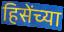
हिसेंच्या